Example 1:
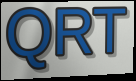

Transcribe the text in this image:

QRT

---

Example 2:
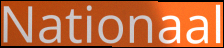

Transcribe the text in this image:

Nationaal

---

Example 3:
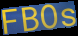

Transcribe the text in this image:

FBOs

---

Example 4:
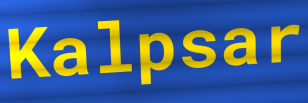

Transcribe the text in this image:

Kalpsar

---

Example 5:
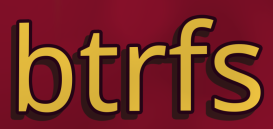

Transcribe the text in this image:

btrfs